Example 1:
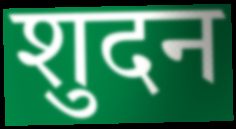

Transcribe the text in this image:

शुदन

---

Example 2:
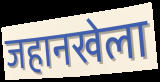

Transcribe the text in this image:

जहानखेला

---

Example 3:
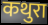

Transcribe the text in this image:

कथुरा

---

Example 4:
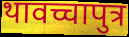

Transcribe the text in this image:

थावच्चापुत्र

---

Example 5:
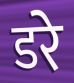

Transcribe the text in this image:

डरे